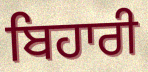
ਬਿਹਾਰੀ